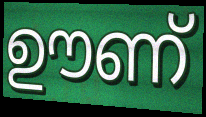
ഊണ്